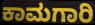
ಕಾಮಗಾರಿ